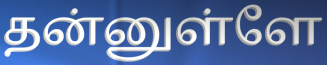
தன்னுள்ளே